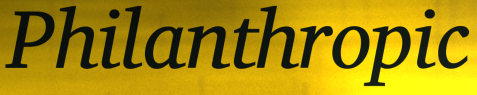
Philanthropic